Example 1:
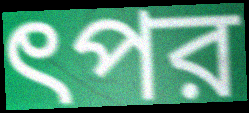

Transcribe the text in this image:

ৎপর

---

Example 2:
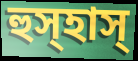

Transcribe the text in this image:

হুস্হাস্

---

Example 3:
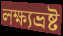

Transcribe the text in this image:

লক্ষ্যভ্রষ্ট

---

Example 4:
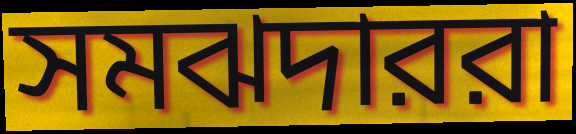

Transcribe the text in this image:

সমঝদাররা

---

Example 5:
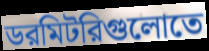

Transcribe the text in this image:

ডরমিটরিগুলোতে